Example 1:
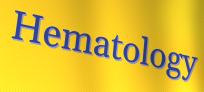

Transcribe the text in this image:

Hematology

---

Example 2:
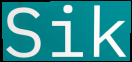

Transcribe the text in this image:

Sik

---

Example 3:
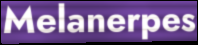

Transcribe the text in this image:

Melanerpes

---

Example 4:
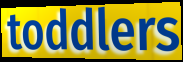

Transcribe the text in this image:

toddlers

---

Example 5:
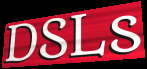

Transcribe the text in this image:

DSLs